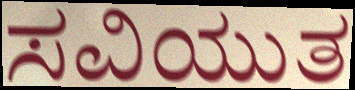
ಸವಿಯುತ